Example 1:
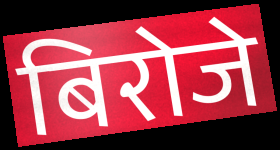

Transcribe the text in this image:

बिरोजे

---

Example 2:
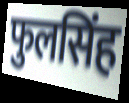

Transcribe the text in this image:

फुलसिंह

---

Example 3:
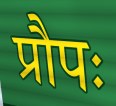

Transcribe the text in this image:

प्रौपः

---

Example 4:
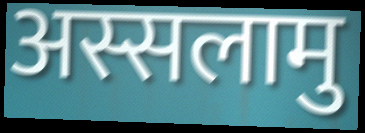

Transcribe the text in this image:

अस्सलामु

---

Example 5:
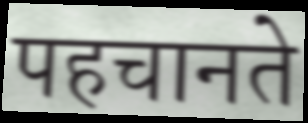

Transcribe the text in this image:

पहचानते